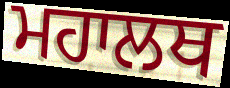
ਮਹਾਲਥ